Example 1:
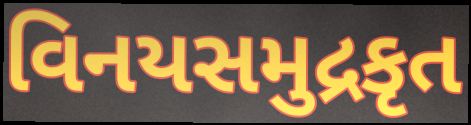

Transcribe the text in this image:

વિનયસમુદ્રકૃત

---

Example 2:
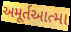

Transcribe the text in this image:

અમૂર્તઆત્મા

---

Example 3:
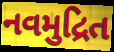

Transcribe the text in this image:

નવમુદ્રિત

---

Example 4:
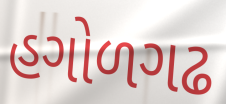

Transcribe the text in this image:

હગોળગઢ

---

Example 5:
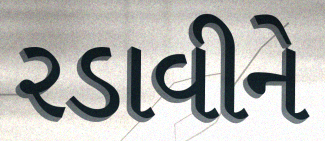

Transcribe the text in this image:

રડાવીને